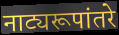
नाट्यरूपांतरे